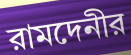
রামদেনীর